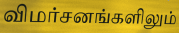
விமர்சனங்களிலும்